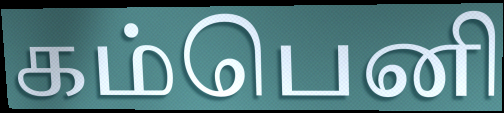
கம்பெனி